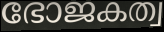
ഭോജകത്വ